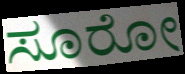
ಸೂರೋ